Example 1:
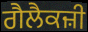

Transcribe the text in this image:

ਗੈਲੈਕਜ਼ੀ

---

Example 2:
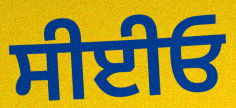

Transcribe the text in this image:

ਸੀਈਓ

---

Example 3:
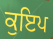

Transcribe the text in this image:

ਕੁਇਪ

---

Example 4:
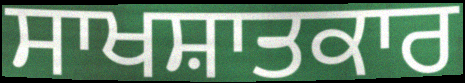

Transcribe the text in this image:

ਸਾਖਸ਼ਾਤਕਾਰ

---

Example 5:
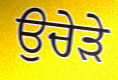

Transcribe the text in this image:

ਉਚੇੜੇ